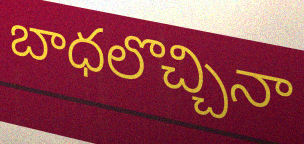
బాధలొచ్చినా